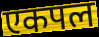
एकपल